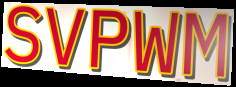
SVPWM